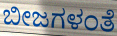
ಬೀಜಗಳಂತೆ